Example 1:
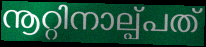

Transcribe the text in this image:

നൂറ്റിനാല്പ്പത്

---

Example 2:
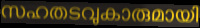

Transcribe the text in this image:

സഹതടവുകാരുമായി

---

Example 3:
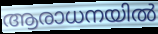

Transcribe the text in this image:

ആരാധനയിൽ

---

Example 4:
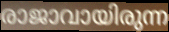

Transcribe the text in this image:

രാജാവായിരുന്ന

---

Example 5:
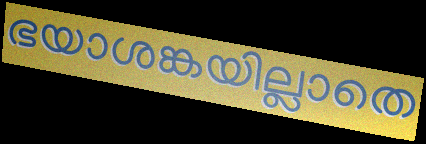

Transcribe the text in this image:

ഭയാശങ്കയില്ലാതെ